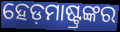
ହେଡ଼ମାଷ୍ଟ୍ରଙ୍କର